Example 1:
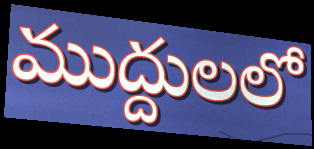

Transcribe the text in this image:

ముద్దులలో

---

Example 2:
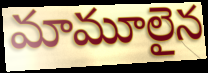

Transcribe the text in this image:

మామూలైన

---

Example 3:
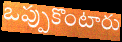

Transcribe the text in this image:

ఒప్పుకొంటారు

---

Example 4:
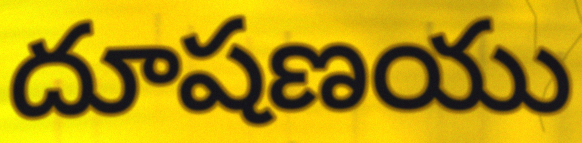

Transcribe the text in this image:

దూషణయు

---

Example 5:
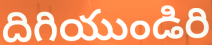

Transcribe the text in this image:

దిగియుండిరి